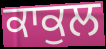
ਕਾਕੁਲ